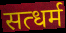
सत्धर्म